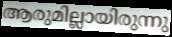
ആരുമില്ലായിരുന്നു